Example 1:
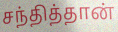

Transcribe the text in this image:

சந்தித்தான்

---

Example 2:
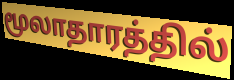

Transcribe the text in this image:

மூலாதாரத்தில்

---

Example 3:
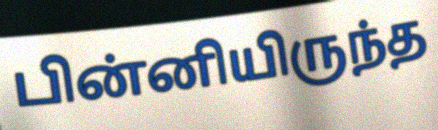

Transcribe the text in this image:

பின்னியிருந்த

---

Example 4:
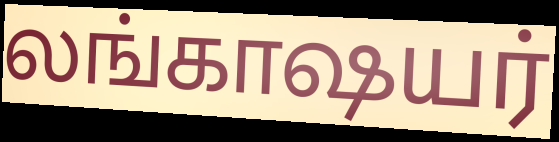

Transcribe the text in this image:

லங்காஷயர்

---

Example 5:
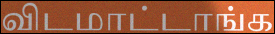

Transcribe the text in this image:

விடமாட்டாங்க